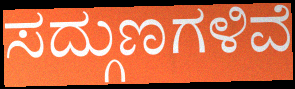
ಸದ್ಗುಣಗಳಿವೆ